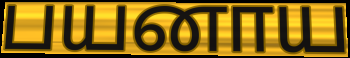
பயனாய